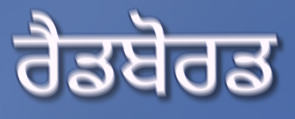
ਰੈਡਬੋਰਡ